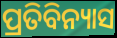
ପ୍ରତିବିନ୍ୟାସ